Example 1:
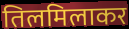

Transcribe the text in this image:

तिलमिलाकर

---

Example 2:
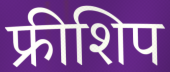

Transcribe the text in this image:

फ्रीशिप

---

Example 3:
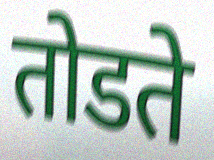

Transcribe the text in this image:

तोडते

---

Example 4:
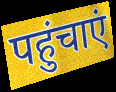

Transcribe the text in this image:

पहुंचाएं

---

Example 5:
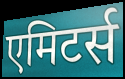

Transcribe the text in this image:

एमिटर्स